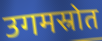
उगमस्रोत